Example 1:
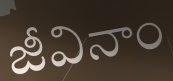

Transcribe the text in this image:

జీవినాం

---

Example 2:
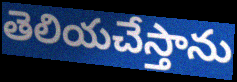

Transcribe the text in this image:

తెలియచేస్తాను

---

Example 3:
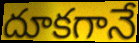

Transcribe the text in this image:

దూకగానే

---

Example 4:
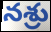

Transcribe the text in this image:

నశ్రు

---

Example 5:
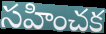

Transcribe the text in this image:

సహించక